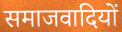
समाजवादियों